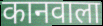
कानवाला